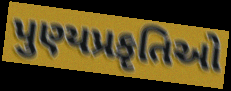
પુણ્યપ્રકૃતિઓ